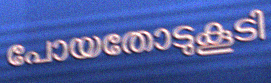
പോയതോടുകൂടി